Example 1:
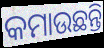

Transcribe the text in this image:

କମାଉଛନ୍ତି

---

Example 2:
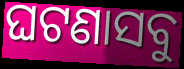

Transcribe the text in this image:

ଘଟଣାସବୁ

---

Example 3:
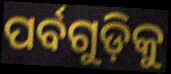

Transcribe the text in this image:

ପର୍ବଗୁଡ଼ିକୁ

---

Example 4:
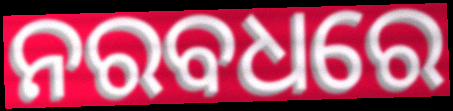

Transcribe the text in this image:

ନରବଧରେ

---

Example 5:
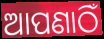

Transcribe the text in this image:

ଆପଣାଠିଁ